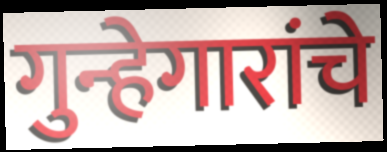
गुन्हेगारांचे